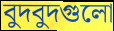
বুদবুদগুলো